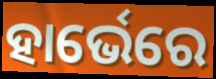
ହାର୍ଭେରେ